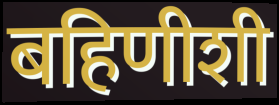
बहिणीशी